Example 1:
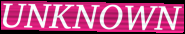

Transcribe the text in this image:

UNKNOWN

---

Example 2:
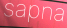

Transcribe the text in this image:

sapna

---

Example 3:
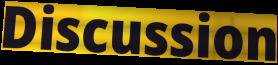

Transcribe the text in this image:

Discussion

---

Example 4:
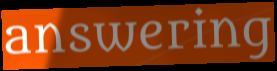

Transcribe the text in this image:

answering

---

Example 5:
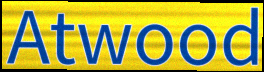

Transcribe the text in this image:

Atwood